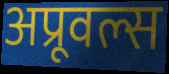
अप्रूवल्स